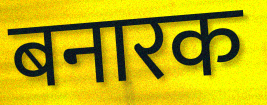
बनारक